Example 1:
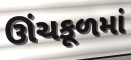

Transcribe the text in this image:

ઊંચકૂળમાં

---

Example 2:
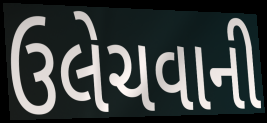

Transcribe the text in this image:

ઉલેચવાની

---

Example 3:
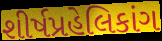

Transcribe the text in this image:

શીર્ષપ્રહેલિકાંગ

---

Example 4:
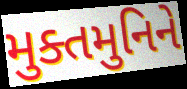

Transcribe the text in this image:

મુક્તમુનિને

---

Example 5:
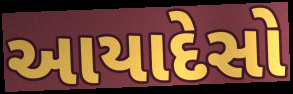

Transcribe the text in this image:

આયાદેસો